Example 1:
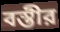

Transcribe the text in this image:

বস্তীর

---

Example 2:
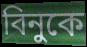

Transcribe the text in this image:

বিনুকে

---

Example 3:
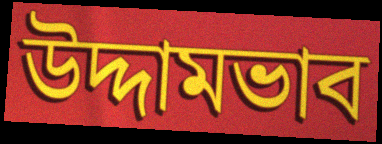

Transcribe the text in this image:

উদ্দামভাব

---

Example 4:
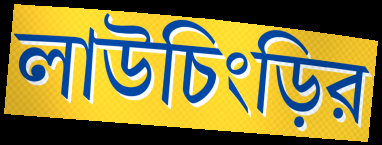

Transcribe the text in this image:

লাউচিংড়ির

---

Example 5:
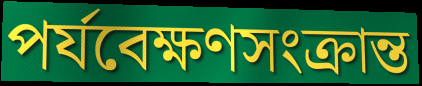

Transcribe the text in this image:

পর্যবেক্ষণসংক্রান্ত